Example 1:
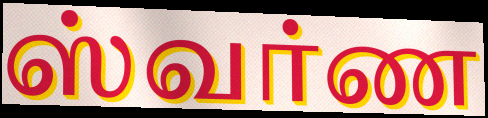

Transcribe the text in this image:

ஸ்வர்ண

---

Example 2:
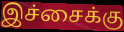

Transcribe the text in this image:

இச்சைக்கு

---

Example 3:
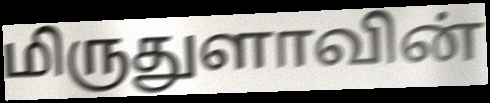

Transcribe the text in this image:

மிருதுளாவின்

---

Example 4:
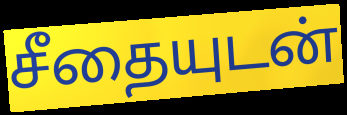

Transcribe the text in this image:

சீதையுடன்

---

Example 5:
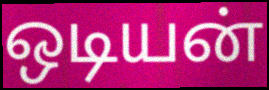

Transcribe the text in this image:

ஒடியன்